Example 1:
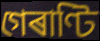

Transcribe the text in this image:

গেৰাণ্টি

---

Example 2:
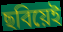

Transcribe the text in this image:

ছবিয়েই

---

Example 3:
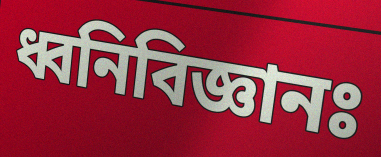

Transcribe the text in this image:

ধ্বনিবিজ্ঞানঃ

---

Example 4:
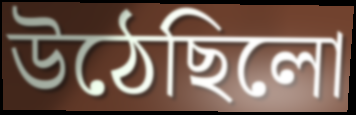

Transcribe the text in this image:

উঠেছিলো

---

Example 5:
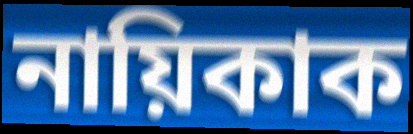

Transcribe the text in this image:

নায়িকাক